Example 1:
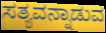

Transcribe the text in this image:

ಸತ್ಯವನ್ನಾಡುವ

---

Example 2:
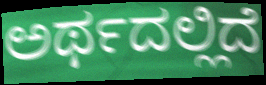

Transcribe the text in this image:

ಅರ್ಥದಲ್ಲಿದೆ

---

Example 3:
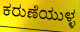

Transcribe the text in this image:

ಕರುಣೆಯುಳ್ಳ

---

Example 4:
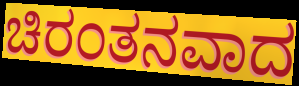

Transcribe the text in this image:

ಚಿರಂತನವಾದ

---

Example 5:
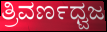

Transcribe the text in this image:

ತ್ರಿವರ್ಣಧ್ವಜ